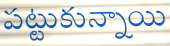
పట్టుకున్నాయి